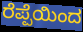
ರೆಪ್ಪೆಯಿಂದ